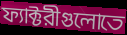
ফ্যাক্টরীগুলোতে